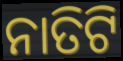
ନାତିଟି